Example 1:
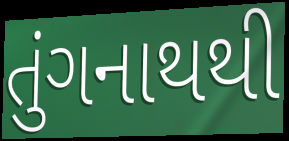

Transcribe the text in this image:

તુંગનાથથી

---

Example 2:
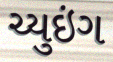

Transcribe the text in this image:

ચ્યુઇંગ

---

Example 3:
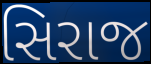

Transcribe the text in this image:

સિરાજ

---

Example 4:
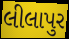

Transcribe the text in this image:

લીલાપુર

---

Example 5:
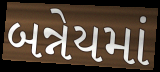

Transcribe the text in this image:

બન્નેયમાં